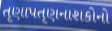
તૃણાપતૃણનાશકોનો